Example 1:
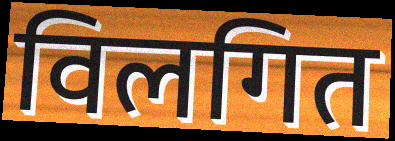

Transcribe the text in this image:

विलगित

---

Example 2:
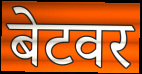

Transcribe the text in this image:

बेटवर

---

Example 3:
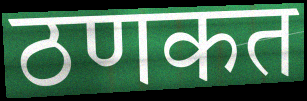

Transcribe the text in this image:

ठणकत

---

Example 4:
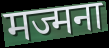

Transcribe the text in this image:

मज्मना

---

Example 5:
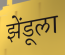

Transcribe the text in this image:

झेंडूला